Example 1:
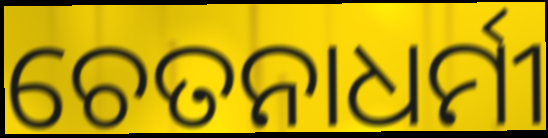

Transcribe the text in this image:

ଚେତନାଧର୍ମୀ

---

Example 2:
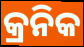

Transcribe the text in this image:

କ୍ରନିକ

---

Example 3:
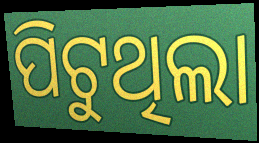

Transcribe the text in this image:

ପିଟୁଥିଲା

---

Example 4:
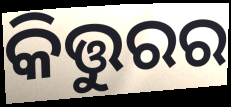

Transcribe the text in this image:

କିତ୍ତୁରର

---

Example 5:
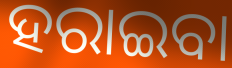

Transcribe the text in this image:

ହରାଇବା